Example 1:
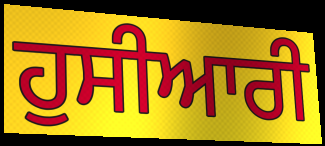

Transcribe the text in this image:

ਹੁਸੀਆਰੀ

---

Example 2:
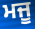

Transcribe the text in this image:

ਮਜੂ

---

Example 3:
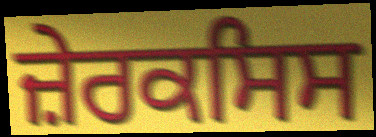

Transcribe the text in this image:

ਜ਼ੇਰਕਸਿਸ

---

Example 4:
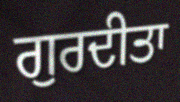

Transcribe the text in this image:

ਗੁਰਦੀਤਾ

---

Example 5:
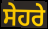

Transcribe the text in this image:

ਸੇਹਰੇ